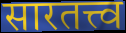
सारतत्त्व